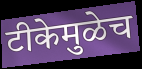
टीकेमुळेच